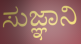
ಸುಜ್ಞಾನಿ